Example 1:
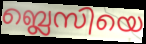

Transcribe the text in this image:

ബ്ലെസിയെ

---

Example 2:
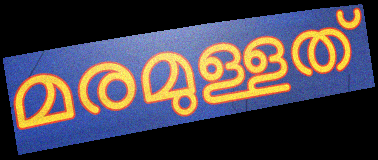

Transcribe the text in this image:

മരമുള്ളത്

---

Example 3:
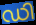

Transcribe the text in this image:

ഡി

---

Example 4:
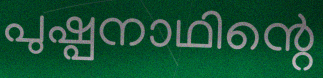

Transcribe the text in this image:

പുഷ്പനാഥിന്റെ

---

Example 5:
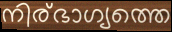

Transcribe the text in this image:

നിര്ഭാഗ്യത്തെ